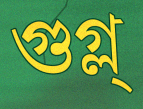
গুগ্ল্